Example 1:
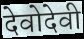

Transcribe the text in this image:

देवोदेवी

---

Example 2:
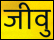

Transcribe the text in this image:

जीवु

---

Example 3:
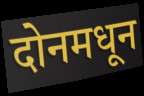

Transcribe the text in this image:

दोनमधून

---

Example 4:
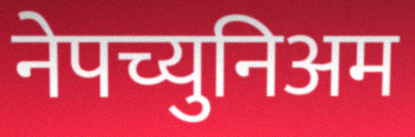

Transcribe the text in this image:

नेपच्युनिअम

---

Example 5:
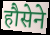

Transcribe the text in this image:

हौसेने